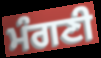
ਮੰਗਣੀ